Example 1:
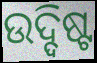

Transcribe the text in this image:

ଉଦ୍ଦିଷ୍ଟ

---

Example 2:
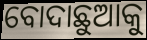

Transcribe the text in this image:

ବୋଦାଛୁଆକୁ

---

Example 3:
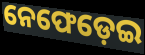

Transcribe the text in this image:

ନେଫେଡ଼େଇ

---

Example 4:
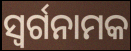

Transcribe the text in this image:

ସ୍ଵର୍ଗନାମକ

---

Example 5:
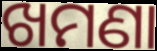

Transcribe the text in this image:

ଖମଣା